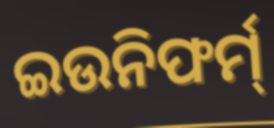
ଇଉନିଫର୍ମ୍